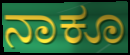
ನಾಕೂ